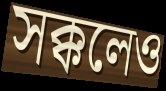
সক্কলেও